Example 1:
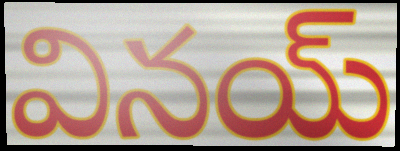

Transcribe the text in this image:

వినయ్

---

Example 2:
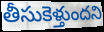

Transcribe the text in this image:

తీసుకెళ్తుందని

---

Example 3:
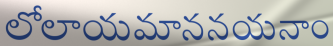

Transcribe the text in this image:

లోలాయమాననయనాం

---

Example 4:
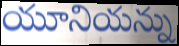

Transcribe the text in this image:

యూనియన్ను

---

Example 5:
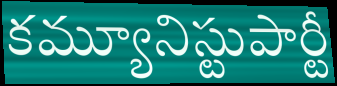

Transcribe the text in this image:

కమ్యూనిస్టుపార్టీ